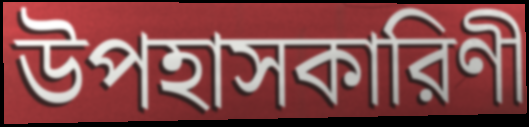
উপহাসকারিণী